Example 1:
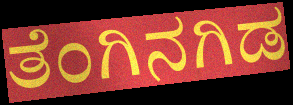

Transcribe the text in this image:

ತೆಂಗಿನಗಿಡ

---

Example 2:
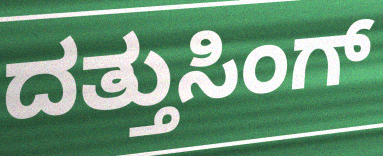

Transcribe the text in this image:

ದತ್ತುಸಿಂಗ್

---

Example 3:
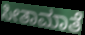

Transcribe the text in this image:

ಸೀತಾಮಾತೆ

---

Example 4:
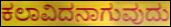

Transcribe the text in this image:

ಕಲಾವಿದನಾಗುವುದು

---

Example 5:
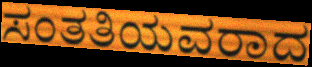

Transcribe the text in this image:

ಸಂತತಿಯವರಾದ